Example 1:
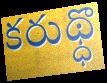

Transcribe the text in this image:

కరుథ్ధొ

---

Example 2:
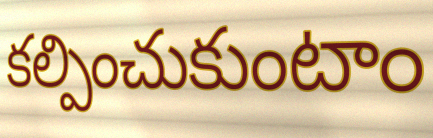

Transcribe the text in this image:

కల్పించుకుంటాం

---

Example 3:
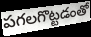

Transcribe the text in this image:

పగలగొట్టడంతో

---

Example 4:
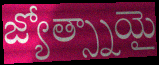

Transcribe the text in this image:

జ్యోత్స్నాయై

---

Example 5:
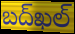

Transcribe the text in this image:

బద్‌ఖల్